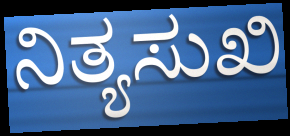
ನಿತ್ಯಸುಖಿ